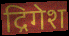
द्रिगेश